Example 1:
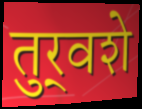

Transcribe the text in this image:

तुर्वशे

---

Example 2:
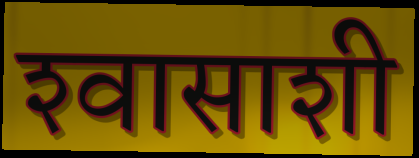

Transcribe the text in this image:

श्वासाशी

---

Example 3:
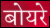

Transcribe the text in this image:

बोयरे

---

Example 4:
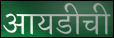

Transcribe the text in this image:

आयडीची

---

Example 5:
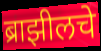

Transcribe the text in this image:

ब्राझीलचे